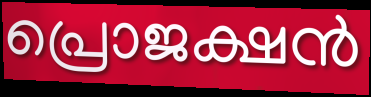
പ്രൊജക്ഷൻ